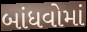
બાંધવોમાં